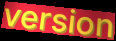
version